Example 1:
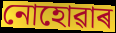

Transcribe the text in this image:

নোহোৱাৰ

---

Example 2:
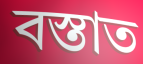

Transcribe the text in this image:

বস্তাত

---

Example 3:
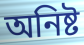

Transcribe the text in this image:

অনিষ্ট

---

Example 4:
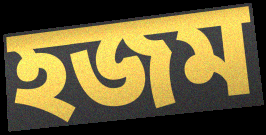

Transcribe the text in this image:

হজম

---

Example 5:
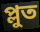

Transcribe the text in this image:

প্লুত